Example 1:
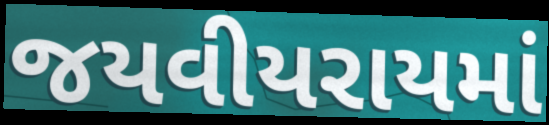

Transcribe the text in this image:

જયવીયરાયમાં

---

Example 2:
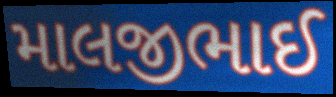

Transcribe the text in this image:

માલજીભાઈ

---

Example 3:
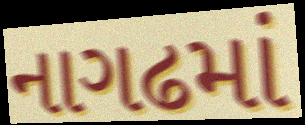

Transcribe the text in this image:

નાગઢમાં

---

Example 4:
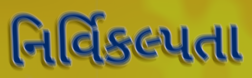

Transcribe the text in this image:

નિર્વિકલ્પતા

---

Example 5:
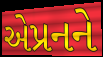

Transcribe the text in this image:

એપ્રનને